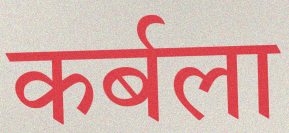
कर्बला